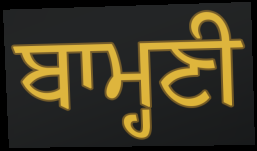
ਬਾਮ੍ਹਣੀ